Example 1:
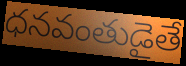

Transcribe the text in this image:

ధనవంతుడైతే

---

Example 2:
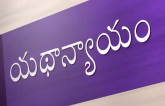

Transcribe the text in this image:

యథాన్యాయం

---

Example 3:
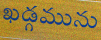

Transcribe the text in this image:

ఖడ్గమును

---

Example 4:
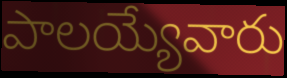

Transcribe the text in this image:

పాలయ్యేవారు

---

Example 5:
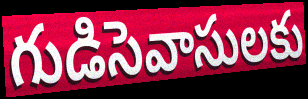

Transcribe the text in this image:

గుడిసెవాసులకు